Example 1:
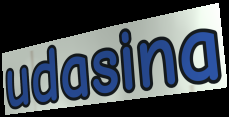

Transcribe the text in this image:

udasina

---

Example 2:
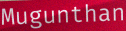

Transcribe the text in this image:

Mugunthan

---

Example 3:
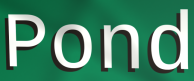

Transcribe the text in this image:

Pond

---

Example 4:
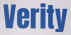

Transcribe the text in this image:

Verity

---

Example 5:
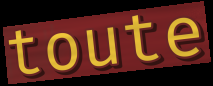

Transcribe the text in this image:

toute